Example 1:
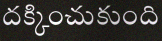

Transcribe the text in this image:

దక్కించుకుంది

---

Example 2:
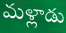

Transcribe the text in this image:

మళ్లాడు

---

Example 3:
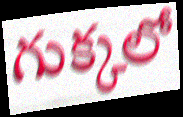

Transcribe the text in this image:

గుక్కలో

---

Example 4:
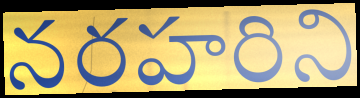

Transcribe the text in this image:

నరహరిని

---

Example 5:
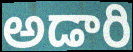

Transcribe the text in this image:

అడారి